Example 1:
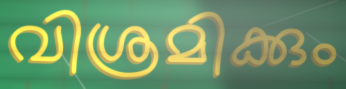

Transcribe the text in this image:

വിശ്രമിക്കും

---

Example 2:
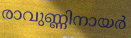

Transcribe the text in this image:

രാവുണ്ണിനായർ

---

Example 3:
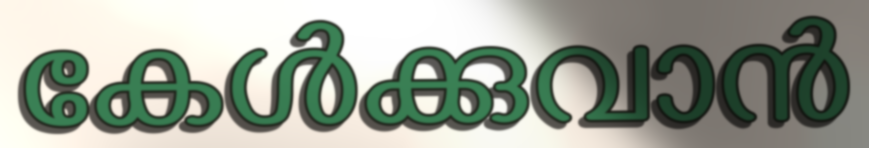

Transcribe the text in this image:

കേൾക്കുവാൻ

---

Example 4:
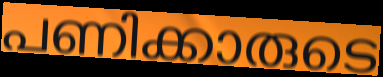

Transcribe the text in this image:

പണിക്കാരുടെ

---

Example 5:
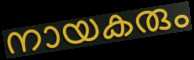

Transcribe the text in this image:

നായകരും